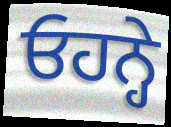
ਓਹਨ੍ਹੇ